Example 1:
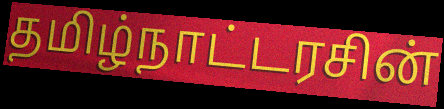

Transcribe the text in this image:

தமிழ்நாட்டரசின்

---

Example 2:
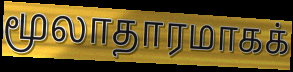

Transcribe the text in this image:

மூலாதாரமாகக்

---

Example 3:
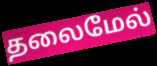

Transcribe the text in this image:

தலைமேல்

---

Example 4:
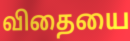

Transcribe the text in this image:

விதையை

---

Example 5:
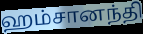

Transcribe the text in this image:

ஹம்சானந்தி